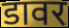
डावर